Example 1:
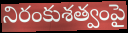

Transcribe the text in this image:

నిరంకుశత్వంపై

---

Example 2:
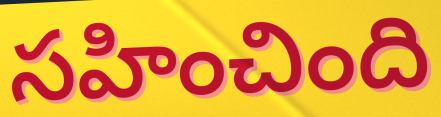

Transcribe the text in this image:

సహించింది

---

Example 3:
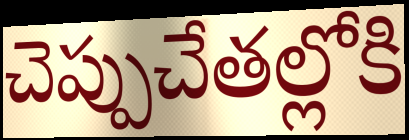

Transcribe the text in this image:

చెప్పుచేతల్లోకి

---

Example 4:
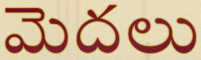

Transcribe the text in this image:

మెదలు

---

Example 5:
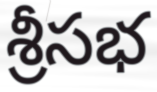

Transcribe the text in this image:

శ్రీసభ